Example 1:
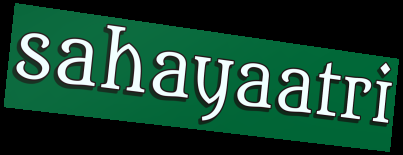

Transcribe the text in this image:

sahayaatri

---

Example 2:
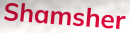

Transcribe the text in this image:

Shamsher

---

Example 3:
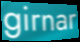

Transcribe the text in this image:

girnar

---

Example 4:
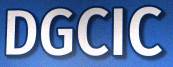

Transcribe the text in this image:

DGCIC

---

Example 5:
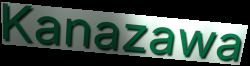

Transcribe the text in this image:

Kanazawa